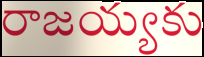
రాజయ్యకు